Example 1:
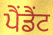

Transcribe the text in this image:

ਪੈਂਡੈਂਟ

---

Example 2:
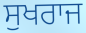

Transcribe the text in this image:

ਸੁਖਰਾਜ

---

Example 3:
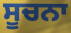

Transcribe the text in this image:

ਸੂਚਨਾ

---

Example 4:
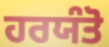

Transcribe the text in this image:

ਹਰਯੰਤੋ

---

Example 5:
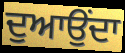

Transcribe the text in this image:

ਦੁਆਉਂਦਾ